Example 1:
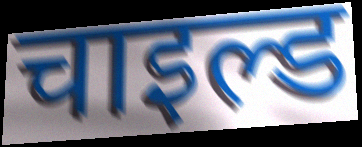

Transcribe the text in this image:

चाइल्ड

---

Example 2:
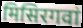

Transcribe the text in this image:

मिसिरगवां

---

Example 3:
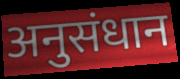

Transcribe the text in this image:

अनुसंधान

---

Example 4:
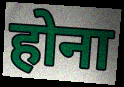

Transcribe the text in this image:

होना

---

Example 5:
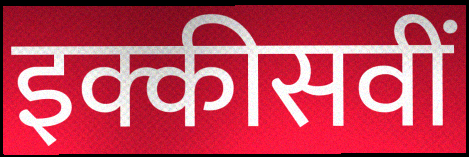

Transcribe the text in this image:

इक्कीसवीं